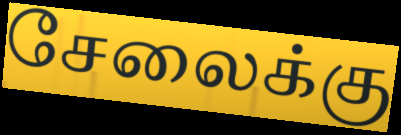
சேலைக்கு